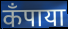
कँपाया